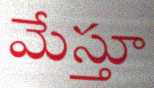
మేస్తూ